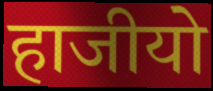
हाजीयो